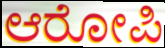
ಆರೋಪಿ